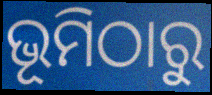
ଭୂମିଠାରୁ